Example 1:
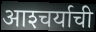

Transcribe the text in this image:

आश्‍चर्याची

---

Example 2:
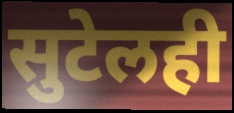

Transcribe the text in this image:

सुटेलही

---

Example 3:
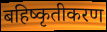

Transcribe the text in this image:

बहिष्कृतीकरण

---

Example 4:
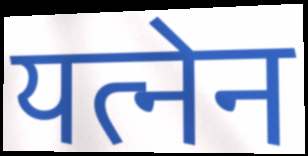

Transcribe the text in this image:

यत्‍नेन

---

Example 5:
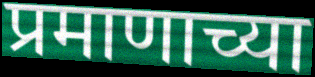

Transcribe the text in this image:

प्रमाणाच्या